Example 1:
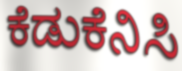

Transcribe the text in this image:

ಕೆಡುಕೆನಿಸಿ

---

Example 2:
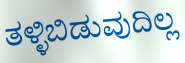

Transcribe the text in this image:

ತಳ್ಳಿಬಿಡುವುದಿಲ್ಲ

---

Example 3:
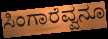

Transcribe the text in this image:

ಸಿಂಗಾರೆವ್ವನೂ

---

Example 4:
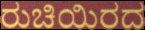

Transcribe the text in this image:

ರುಚಿಯಿರದ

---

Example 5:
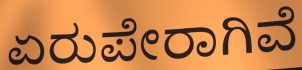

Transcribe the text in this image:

ಏರುಪೇರಾಗಿವೆ